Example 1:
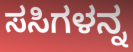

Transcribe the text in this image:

ಸಸಿಗಳನ್ನ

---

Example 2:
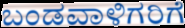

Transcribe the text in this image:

ಬಂಡವಾಳಿಗರಿಗೆ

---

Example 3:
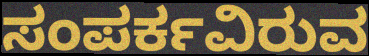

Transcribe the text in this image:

ಸಂಪರ್ಕವಿರುವ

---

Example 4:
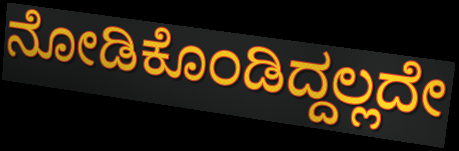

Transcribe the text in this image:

ನೋಡಿಕೊಂಡಿದ್ದಲ್ಲದೇ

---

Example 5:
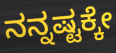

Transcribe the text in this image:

ನನ್ನಷ್ಟಕ್ಕೇ